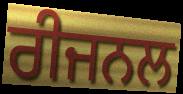
ਰੀਜਨਲ